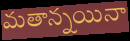
మతాన్నయినా